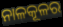
ନାଳକୂଳର